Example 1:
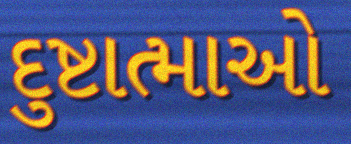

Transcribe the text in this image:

દુષ્ટાત્માઓ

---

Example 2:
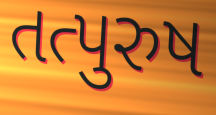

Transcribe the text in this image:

તત્પુરુષ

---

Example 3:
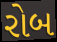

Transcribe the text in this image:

રોબ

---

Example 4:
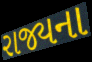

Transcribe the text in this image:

રાજ્યના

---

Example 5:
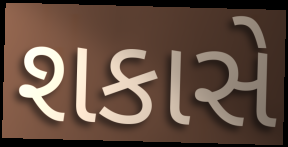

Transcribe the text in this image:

શકાસે